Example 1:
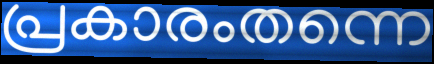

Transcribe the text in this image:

പ്രകാരംതന്നെ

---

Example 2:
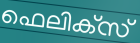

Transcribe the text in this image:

ഫെലിക്‌സ്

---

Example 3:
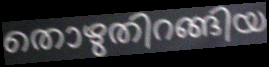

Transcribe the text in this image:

തൊഴുതിറങ്ങിയ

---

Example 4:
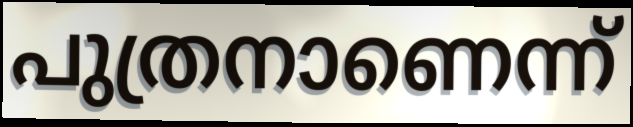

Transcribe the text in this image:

പുത്രനാണെന്ന്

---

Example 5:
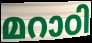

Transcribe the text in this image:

മറാഠി